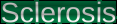
Sclerosis